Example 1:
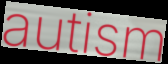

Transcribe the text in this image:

autism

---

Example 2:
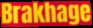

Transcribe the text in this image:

Brakhage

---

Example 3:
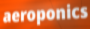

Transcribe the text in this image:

aeroponics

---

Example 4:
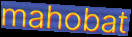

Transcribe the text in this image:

mahobat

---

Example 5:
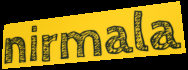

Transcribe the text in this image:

nirmala